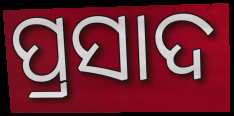
ପ୍ରସାଦ